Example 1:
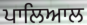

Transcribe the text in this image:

ਪਾਲਿਆਲ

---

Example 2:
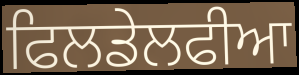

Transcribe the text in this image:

ਫਿਲਡੇਲਫੀਆ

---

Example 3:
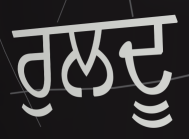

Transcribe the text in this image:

ਰੁਲਦੂ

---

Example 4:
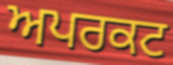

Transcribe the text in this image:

ਅਪਰਕਟ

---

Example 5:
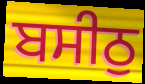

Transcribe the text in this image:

ਬਸੀਠੁ